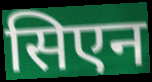
सिएन